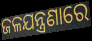
ଜଳଯନ୍ତ୍ରଣାରେ